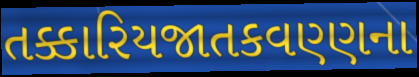
તક્કારિયજાતકવણ્ણના